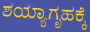
ಶಯ್ಯಾಗೃಹಕ್ಕೆ